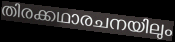
തിരക്കഥാരചനയിലും